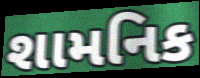
શામનિક